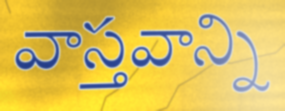
వాస్తవాన్ని